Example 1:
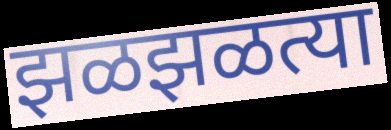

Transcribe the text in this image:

झळझळत्या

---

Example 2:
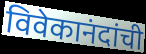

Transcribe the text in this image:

विवेकानंदांची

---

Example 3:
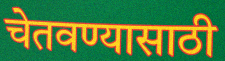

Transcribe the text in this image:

चेतवण्यासाठी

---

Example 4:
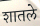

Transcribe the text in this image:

शातले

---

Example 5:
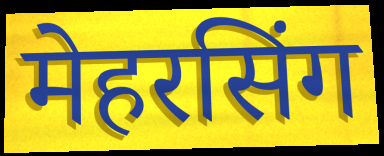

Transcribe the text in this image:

मेहरसिंग